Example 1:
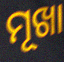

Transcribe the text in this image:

ମୂଖା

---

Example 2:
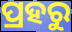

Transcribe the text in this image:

ପ୍ରହରୁ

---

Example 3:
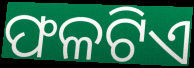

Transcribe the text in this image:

ଫଳଟିଏ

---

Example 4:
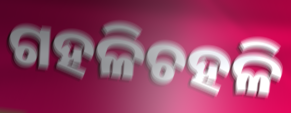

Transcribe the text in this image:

ଗହଳିଚହଳି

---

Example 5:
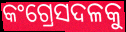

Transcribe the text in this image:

କଂଗ୍ରେସଦଳକୁ